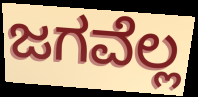
ಜಗವೆಲ್ಲ